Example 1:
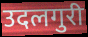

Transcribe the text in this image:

उदलगुरी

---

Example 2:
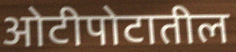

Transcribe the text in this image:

ओटीपोटातील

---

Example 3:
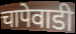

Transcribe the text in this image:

चापेवाडी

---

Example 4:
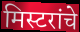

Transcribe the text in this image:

मिस्टरांचे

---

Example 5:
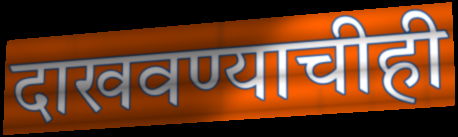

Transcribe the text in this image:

दाखवण्याचीही